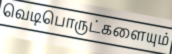
வெடிபொருட்களையும்